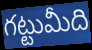
గట్టుమీది